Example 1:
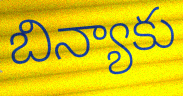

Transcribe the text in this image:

బిన్యాకు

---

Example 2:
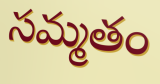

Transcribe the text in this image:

సమ్మతం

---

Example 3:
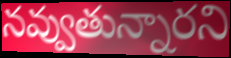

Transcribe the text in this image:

నవ్వుతున్నారని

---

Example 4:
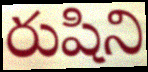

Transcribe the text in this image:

రుషిని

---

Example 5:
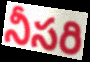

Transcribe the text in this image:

నీసరి